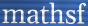
mathsf